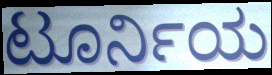
ಟೂರ್ನಿಯ